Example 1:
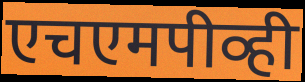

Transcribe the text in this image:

एचएमपीव्ही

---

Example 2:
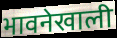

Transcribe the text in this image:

भावनेखाली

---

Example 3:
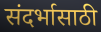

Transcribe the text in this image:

संदर्भासाठी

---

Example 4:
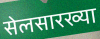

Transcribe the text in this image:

सेलसारख्या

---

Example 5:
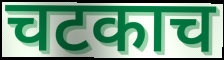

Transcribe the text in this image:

चटकाच